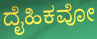
ದೈಹಿಕವೋ